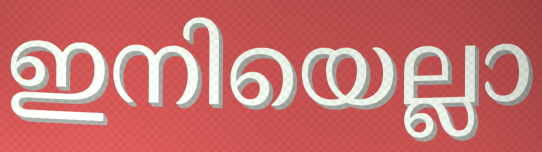
ഇനിയെല്ലാ